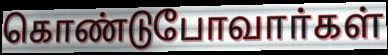
கொண்டுபோவார்கள்